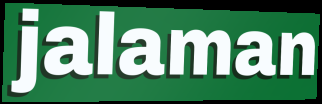
jalaman